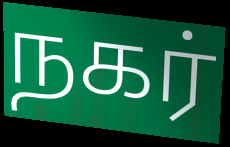
நகர்